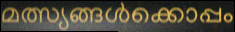
മത്സ്യങ്ങൾക്കൊപ്പം